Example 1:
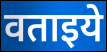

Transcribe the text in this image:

वताइये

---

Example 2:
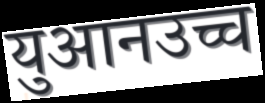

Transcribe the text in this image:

युआनउच्च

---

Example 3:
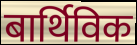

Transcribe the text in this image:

बार्थिविक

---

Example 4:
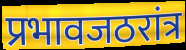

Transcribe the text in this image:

प्रभावजठरांत्र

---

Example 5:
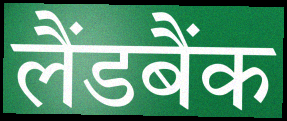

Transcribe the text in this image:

लैंडबैंक